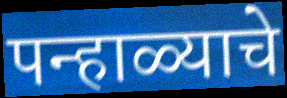
पन्हाळ्याचे